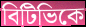
বিটিভিকে